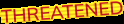
THREATENED